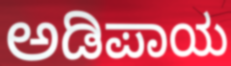
ಅಡಿಪಾಯ